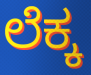
ಲೆಕ್ಕ